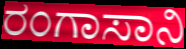
ರಂಗಾಸಾನಿ